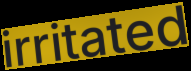
irritated